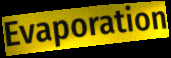
Evaporation